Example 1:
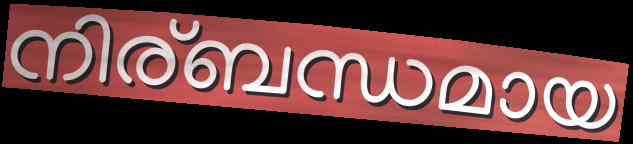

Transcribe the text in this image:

നിര്ബന്ധമായ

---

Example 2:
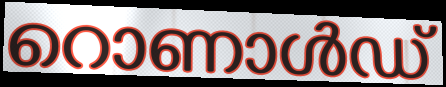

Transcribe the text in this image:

റൊണാൾഡ്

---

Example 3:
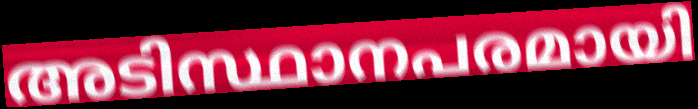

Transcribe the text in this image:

അടിസ്ഥാനപരമായി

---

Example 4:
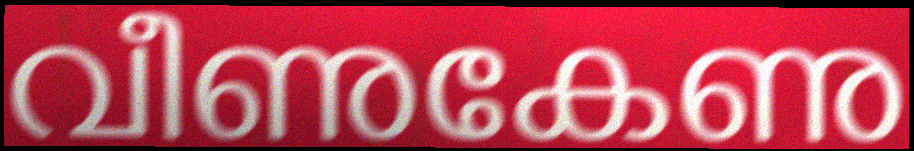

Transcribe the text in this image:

വീണുകേണു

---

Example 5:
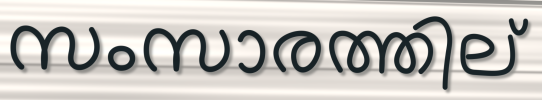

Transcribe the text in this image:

സംസാരത്തില്